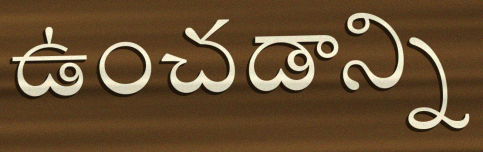
ఉంచడాన్ని